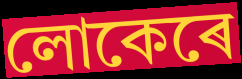
লোকেৰে